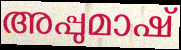
അപ്പുമാഷ്